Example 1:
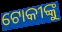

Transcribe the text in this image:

ଟୋକୀଙ୍କୁ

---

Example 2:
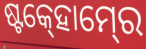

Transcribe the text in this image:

ଷ୍ଟକ୍‍ହୋମ୍‍ରେ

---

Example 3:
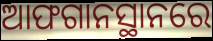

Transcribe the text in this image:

ଆଫଗାନସ୍ଥାନରେ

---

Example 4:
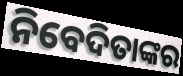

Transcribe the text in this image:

ନିବେଦିତାଙ୍କର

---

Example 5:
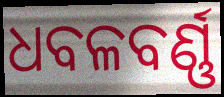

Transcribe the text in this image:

ଧବଳବର୍ଣ୍ଣ